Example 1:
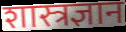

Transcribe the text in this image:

शास्त्रज्ञान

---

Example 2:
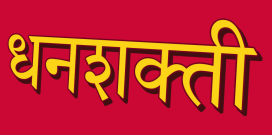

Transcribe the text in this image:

धनशक्ती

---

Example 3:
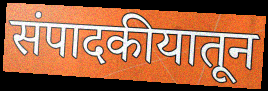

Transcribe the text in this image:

संपादकीयातून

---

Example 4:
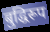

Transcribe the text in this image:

बुद्धिरूप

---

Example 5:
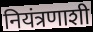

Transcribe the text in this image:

नियंत्रणाशी